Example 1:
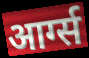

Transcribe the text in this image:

आर्ग्स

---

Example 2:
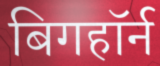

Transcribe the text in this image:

बिगहॉर्न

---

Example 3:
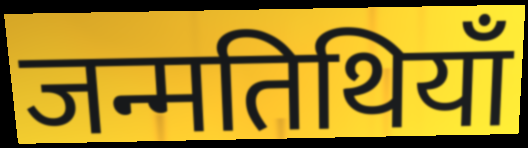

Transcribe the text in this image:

जन्मतिथियाँ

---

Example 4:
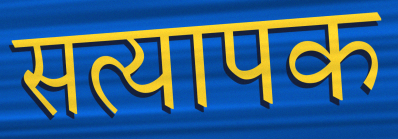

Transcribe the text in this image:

सत्यापक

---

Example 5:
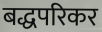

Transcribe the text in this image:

बद्धपरिकर